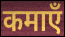
कमाएँ